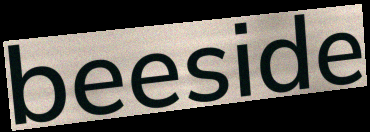
beeside